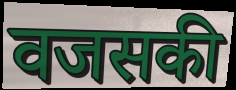
वजसकी